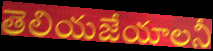
తెలియజేయాలనీ